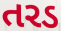
તરડ